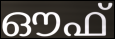
ഔഫ്